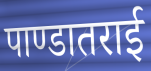
पाण्डातराई